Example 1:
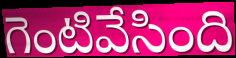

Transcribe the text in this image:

గెంటివేసింది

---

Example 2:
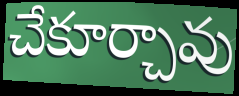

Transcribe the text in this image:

చేకూర్చావు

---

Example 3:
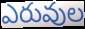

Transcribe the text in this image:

ఎరువుల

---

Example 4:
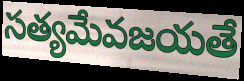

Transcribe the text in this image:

సత్యమేవజయతే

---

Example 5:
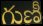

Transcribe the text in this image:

గుణీ